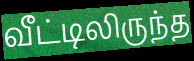
வீட்டிலிருந்த